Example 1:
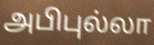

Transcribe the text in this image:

அபிபுல்லா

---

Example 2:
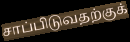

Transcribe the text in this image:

சாப்பிடுவதற்குக்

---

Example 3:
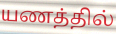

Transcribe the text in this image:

யணத்தில்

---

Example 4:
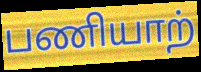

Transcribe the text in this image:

பணியாற்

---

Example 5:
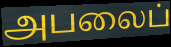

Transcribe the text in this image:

அபலைப்